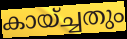
കായ്ച്ചതും